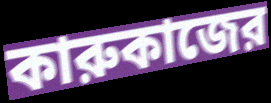
কারুকাজের